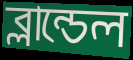
ব্লান্ডেল